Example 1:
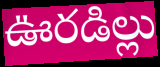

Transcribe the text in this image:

ఊరడిల్లు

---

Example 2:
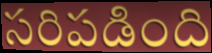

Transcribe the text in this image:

సరిపడింది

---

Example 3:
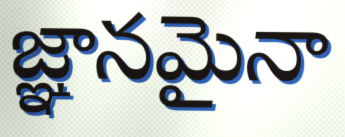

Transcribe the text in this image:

జ్ఞానమైనా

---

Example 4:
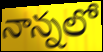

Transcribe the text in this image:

నాన్నలో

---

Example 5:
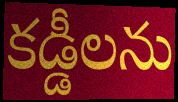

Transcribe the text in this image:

కడ్డీలను